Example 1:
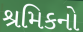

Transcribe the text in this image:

શ્રમિકનો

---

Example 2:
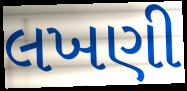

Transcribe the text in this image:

લખણી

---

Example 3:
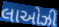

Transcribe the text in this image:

લાઓઝી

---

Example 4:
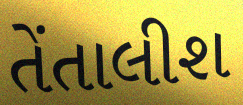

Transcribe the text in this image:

તેંતાલીશ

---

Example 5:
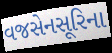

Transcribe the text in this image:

વજસેનસૂરિના